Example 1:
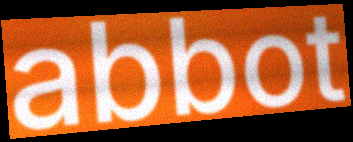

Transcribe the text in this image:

abbot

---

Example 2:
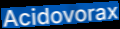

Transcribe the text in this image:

Acidovorax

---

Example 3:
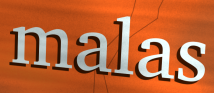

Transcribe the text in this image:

malas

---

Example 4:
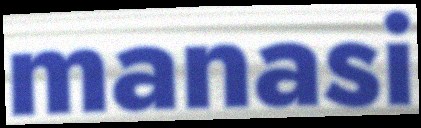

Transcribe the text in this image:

manasi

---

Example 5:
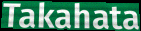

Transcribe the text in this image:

Takahata